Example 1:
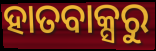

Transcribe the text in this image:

ହାତବାକ୍ସରୁ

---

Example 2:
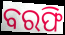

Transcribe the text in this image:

ବରଫି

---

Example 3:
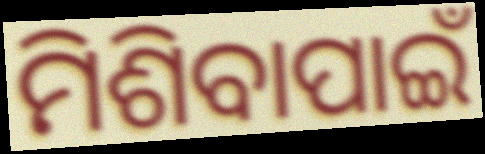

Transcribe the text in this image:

ମିଶିବାପାଇଁ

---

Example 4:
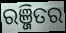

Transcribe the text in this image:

ରଞ୍ଜିତର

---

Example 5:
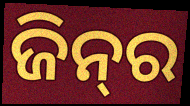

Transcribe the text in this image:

ଜିନ୍‌ର